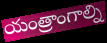
యంత్రాంగాల్ని